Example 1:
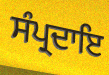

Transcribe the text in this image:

ਸੰਪ੍ਰਦਾਇ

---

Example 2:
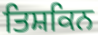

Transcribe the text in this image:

ਤਿਸ਼ਕਿਨ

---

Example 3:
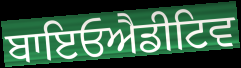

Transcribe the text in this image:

ਬਾਇਓਐਡੀਟਿਵ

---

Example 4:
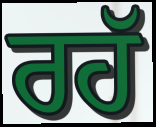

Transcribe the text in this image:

ਰਹੱ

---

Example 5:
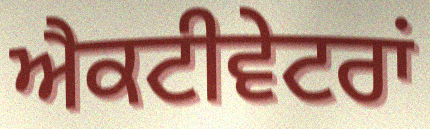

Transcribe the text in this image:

ਐਕਟੀਵੇਟਰਾਂ